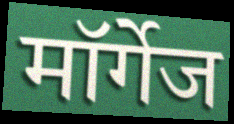
मॉर्गेज